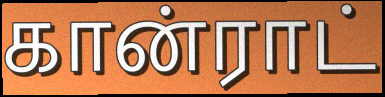
கான்ராட்